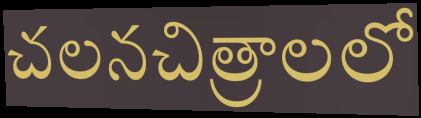
చలనచిత్రాలలో